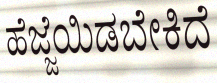
ಹೆಜ್ಜೆಯಿಡಬೇಕಿದೆ